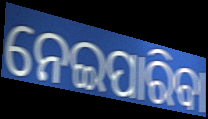
ନେଇପାରିବା